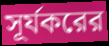
সূর্যকরের